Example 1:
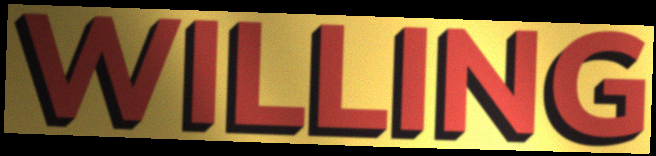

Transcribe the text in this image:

WILLING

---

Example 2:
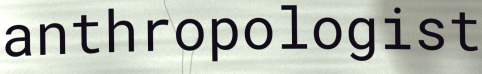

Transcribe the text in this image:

anthropologist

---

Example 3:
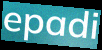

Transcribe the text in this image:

epadi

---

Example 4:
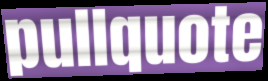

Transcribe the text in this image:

pullquote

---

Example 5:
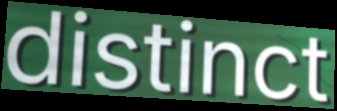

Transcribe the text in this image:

distinct